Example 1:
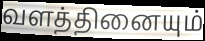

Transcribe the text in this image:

வளத்தினையும்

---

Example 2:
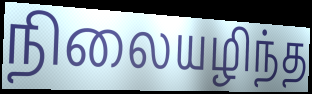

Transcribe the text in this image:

நிலையழிந்த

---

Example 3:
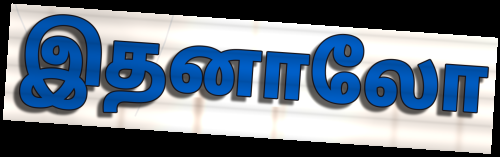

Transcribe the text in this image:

இதனாலோ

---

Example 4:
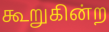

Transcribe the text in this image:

கூறுகின்ற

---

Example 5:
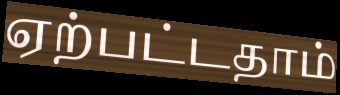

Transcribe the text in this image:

ஏற்பட்டதாம்